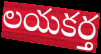
లయకర్త